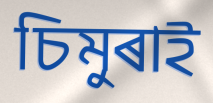
চিমুৰাই